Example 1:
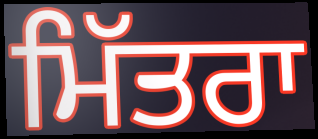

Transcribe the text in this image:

ਮਿੱਤਰਾ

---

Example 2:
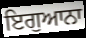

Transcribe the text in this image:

ਇਗੁਆਨਾ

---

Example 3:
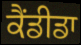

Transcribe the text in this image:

ਕੈਂਡੀਡਾ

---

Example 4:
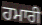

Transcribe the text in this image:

ਹਮਾਰੀ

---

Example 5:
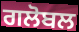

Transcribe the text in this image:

ਗਲੋਬਲ